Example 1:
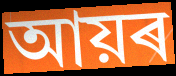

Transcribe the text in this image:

আয়ৰ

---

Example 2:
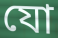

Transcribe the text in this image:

যো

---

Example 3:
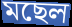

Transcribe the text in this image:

মছেল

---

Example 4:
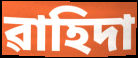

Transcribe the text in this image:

ৱাহিদা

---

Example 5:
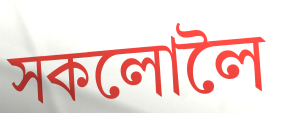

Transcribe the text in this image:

সকলোলৈ